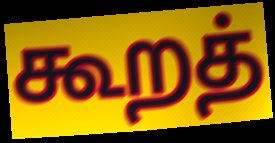
கூறத்